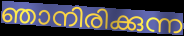
ഞാനിരിക്കുന്ന